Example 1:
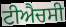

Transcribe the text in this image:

ਟੀਐਚਸੀ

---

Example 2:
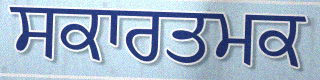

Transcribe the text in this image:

ਸਕਾਰਤਮਕ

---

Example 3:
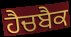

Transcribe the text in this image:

ਹੈਚਬੈਕ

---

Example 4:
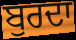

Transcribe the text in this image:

ਬੁਰਦਾ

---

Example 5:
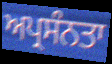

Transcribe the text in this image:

ਅਪ੍ਰਸੰਨਤਾ